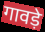
गावड़े